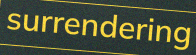
surrendering